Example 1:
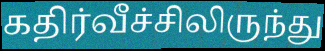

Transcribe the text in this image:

கதிர்வீச்சிலிருந்து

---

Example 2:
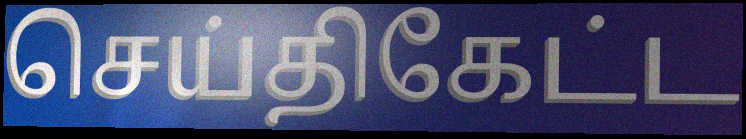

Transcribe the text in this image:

செய்திகேட்ட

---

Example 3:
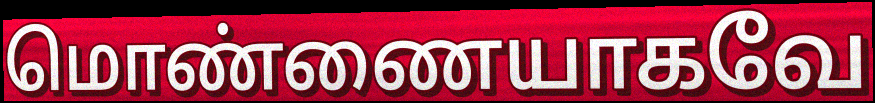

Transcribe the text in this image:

மொண்ணையாகவே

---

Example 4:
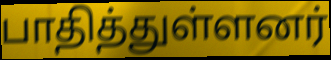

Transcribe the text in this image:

பாதித்துள்ளனர்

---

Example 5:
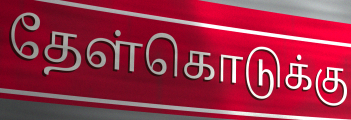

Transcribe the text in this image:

தேள்கொடுக்கு